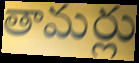
తామర్లు